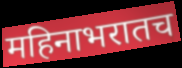
महिनाभरातच